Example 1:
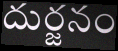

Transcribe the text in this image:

దుర్జనం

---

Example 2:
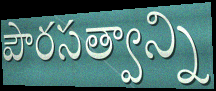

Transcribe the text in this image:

పౌరసత్వాన్ని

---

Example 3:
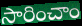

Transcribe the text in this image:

సారించాం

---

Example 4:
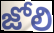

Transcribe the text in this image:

జోలి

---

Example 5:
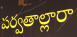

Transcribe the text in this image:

పర్వతాల్లారా